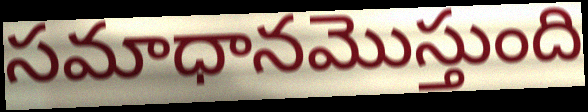
సమాధానమొస్తుంది